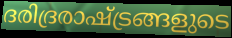
ദരിദ്രരാഷ്ട്രങ്ങളുടെ